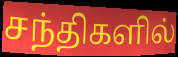
சந்திகளில்